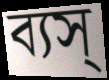
ব্যস্